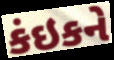
કંઇકને